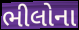
ભીલોના